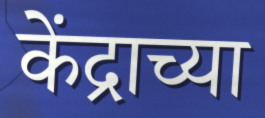
केंद्राच्या